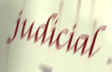
judicial